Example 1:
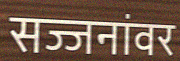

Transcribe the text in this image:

सज्जनांवर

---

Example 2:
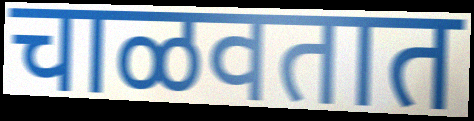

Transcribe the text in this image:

चाळवतात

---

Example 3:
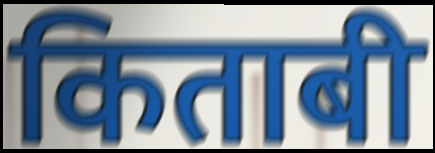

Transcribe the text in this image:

किताबी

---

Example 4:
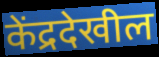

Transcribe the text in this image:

केंद्रदेखील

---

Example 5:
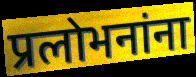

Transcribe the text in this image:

प्रलोभनांना